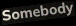
Somebody